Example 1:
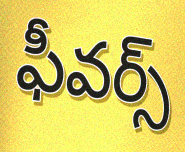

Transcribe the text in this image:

ఫీవర్స్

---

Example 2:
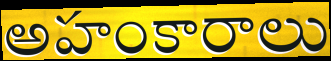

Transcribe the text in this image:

అహంకారాలు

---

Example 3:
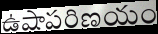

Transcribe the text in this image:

ఉషాపరిణయం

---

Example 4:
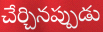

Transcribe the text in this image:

చేర్చినప్పుడు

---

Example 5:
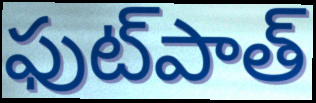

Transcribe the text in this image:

ఫుట్‌పాత్